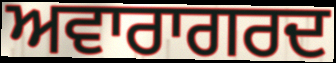
ਅਵਾਰਾਗਰਦ